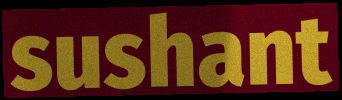
sushant